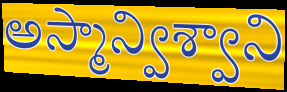
అస్మాన్విశ్వాని